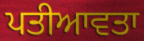
ਪਤੀਆਵਤਾ